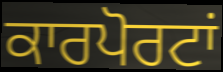
ਕਾਰਪੋਰਟਾਂ